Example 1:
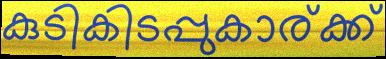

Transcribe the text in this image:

കുടികിടപ്പുകാര്ക്ക്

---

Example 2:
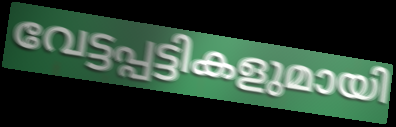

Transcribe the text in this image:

വേട്ടപ്പട്ടികളുമായി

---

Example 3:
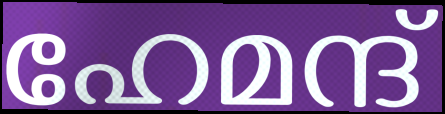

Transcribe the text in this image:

ഹേമന്ദ്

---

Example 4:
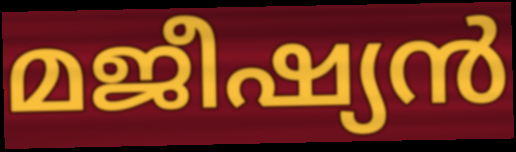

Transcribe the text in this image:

മജീഷ്യൻ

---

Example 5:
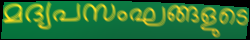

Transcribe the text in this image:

മദ്യപസംഘങ്ങളുടെ